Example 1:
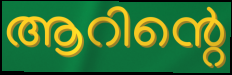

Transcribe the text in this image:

ആറിന്റെ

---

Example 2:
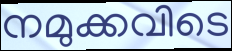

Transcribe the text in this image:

നമുക്കവിടെ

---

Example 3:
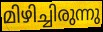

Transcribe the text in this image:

മിഴിച്ചിരുന്നു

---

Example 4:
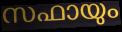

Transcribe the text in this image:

സഫായും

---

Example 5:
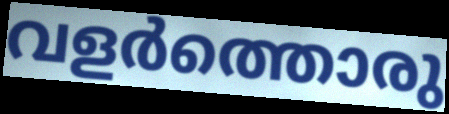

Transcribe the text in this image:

വളർത്തൊരു